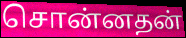
சொன்னதன்